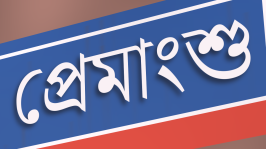
প্রেমাংশু